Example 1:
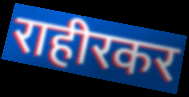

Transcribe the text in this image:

राहीरकर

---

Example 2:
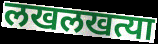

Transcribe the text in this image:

लखलखत्या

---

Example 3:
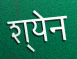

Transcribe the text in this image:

श्येन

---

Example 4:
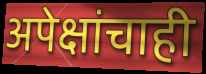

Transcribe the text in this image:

अपेक्षांचाही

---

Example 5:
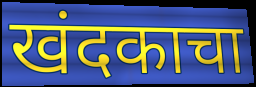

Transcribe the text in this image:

खंदकाचा